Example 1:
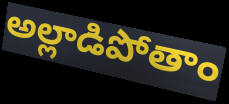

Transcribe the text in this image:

అల్లాడిపోతాం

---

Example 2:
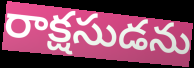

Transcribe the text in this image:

రాక్షసుడను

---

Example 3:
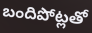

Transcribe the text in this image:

బందిపోట్లతో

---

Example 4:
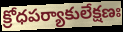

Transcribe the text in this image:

క్రోధపర్యాకులేక్షణః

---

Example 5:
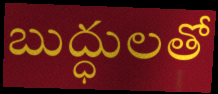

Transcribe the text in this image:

బుద్ధులతో